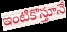
ఇంటికొస్తూనే